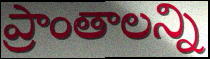
ప్రాంతాలన్ని